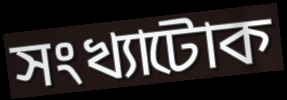
সংখ্যাটোক